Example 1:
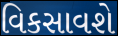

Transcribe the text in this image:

વિકસાવશે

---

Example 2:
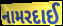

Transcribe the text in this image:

નામરદાઈ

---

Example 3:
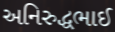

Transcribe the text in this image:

અનિરુદ્ધભાઈ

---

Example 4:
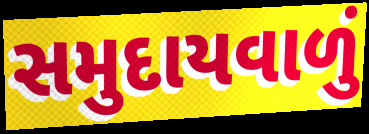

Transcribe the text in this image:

સમુદાયવાળું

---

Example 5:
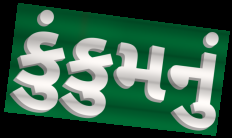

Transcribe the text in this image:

કુંકુમનું